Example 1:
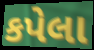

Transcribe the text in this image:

કપેલા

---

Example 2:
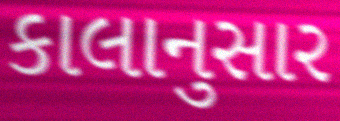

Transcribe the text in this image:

કાલાનુસાર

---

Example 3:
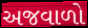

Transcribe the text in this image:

અજવાળો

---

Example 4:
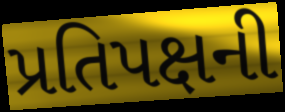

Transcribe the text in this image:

પ્રતિપક્ષની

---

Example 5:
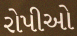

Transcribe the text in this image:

રોપીઓ